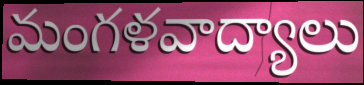
మంగళవాద్యాలు